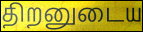
திறனுடைய